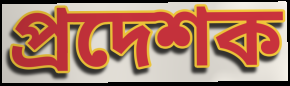
প্ৰদেশক